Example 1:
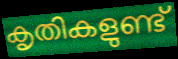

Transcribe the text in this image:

കൃതികളുണ്ട്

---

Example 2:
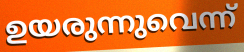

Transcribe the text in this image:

ഉയരുന്നുവെന്ന്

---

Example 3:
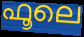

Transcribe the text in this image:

ഫൂലെ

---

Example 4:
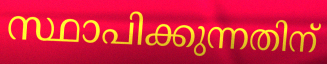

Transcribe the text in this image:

സ്ഥാപിക്കുന്നതിന്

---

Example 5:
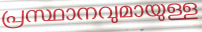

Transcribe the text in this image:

പ്രസ്ഥാനവുമായുള്ള